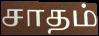
சாதம்